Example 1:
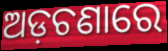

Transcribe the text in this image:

ଅଡ଼ଚଣାରେ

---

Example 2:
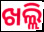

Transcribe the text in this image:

ଖଲ୍ଲି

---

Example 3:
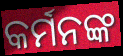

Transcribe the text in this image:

କର୍ମନଙ୍କ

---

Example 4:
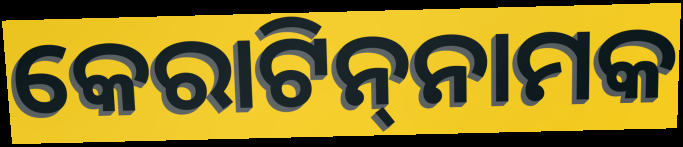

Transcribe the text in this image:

କେରାଟିନ୍‌ନାମକ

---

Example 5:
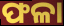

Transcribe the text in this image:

ଫଳା